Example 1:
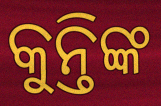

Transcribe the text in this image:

କୁନ୍ତିଙ୍କ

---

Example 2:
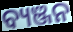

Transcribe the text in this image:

ବ୍ୟଞ୍ଜନ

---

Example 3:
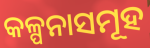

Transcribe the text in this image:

କଳ୍ପନାସମୂହ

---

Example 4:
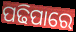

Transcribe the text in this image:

ପଢିପାରେ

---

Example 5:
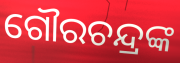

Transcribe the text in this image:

ଗୌରଚନ୍ଦ୍ରଙ୍କ